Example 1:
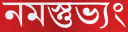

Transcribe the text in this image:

নমস্তুভ্যং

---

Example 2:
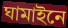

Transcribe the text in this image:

ঘামাইনে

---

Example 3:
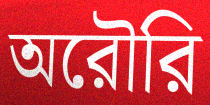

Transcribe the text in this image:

অরৌরি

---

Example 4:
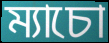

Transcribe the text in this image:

ম্যাচো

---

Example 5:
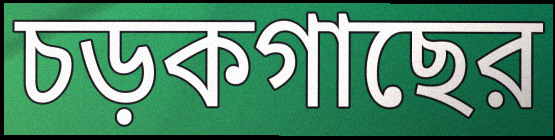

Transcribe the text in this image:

চড়কগাছের